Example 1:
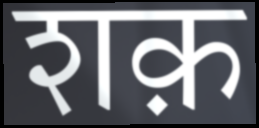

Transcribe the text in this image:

शक़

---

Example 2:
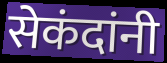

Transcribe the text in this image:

सेकंदांनी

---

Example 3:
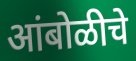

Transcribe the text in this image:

आंबोळीचे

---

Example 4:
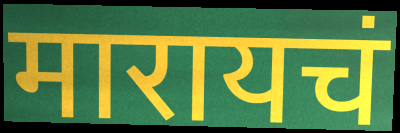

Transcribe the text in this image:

मारायचं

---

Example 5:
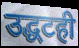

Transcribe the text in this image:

उद्धटही